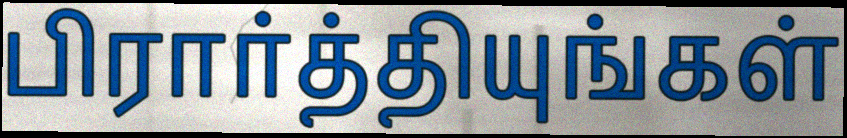
பிரார்த்தியுங்கள்